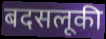
बदसलूकी